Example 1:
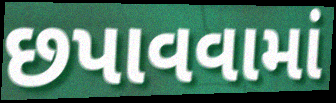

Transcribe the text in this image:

છપાવવામાં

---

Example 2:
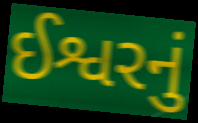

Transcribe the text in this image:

ઈશ્વરનું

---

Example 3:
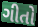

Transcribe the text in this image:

ગીતો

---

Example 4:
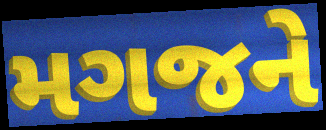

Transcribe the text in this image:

મગજને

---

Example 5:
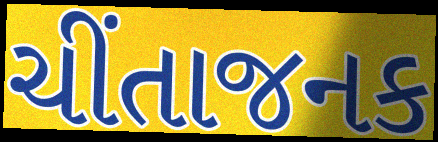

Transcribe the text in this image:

ચીંતાજનક